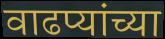
वाढप्यांच्या